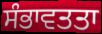
ਸੰਭਾਵਤਤਾ